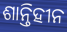
ଶାନ୍ତିହୀନ